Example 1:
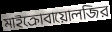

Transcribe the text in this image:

মাইক্রোবায়োলজির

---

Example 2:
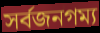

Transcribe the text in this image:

সর্বজনগম্য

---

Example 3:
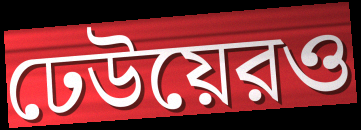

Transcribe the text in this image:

ঢেউয়েরও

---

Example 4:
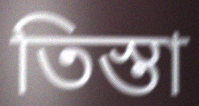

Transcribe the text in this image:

তিস্তা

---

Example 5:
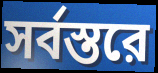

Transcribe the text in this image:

সর্বস্তরে